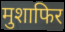
मुशाफिर